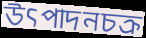
উৎপাদনচক্র